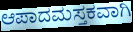
ಆಪಾದಮಸ್ತಕವಾಗಿ